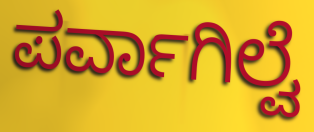
ಪರ್ವಾಗಿಲ್ವೆ